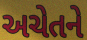
અચેતને